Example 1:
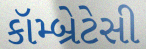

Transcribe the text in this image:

કૉમ્બ્રેટેસી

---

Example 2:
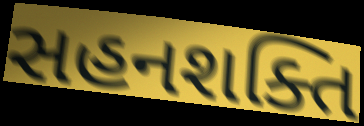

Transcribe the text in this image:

સહનશક્તિ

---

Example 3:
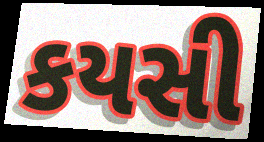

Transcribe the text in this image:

કયસી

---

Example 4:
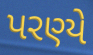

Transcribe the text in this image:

પરણ્યે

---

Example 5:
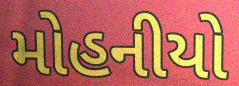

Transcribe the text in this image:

મોહનીયો